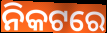
ନିକଟରେ